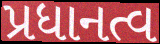
પ્રધાનત્વ